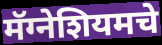
मॅग्नेशियमचे